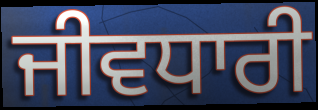
ਜੀਵਧਾਰੀ